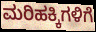
ಮರಿಹಕ್ಕಿಗಳಿಗೆ